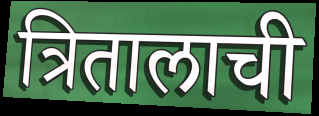
त्रितालाची